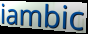
iambic